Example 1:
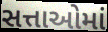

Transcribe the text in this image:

સત્તાઓમાં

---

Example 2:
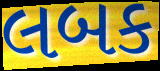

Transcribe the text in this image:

લબક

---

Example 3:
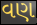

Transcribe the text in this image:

વણ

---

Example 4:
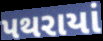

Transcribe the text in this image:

પથરાયાં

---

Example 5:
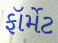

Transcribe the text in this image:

ફૉર્મેટ